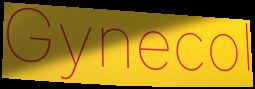
Gynecol